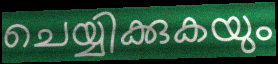
ചെയ്യിക്കുകയും